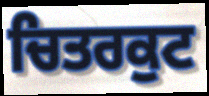
ਚਿਤਰਕੁਟ